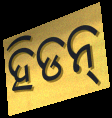
ହିଡନ୍